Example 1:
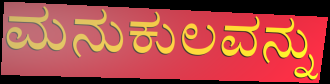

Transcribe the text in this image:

ಮನುಕುಲವನ್ನು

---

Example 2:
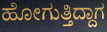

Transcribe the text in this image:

ಹೋಗುತ್ತಿದ್ದಾಗ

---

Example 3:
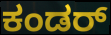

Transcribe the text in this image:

ಕಂಡರ್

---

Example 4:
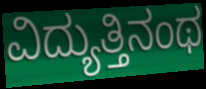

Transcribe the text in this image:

ವಿದ್ಯುತ್ತಿನಂಥ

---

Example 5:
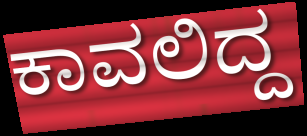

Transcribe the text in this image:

ಕಾವಲಿದ್ದ